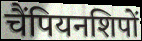
चैंपियनशिपों